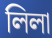
লিলা